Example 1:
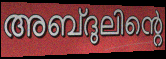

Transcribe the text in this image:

അബ്ദുലിന്റെ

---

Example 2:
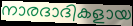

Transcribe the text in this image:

നാരദാദികളായ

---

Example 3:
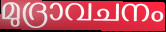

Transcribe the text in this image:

മുദ്രാവചനം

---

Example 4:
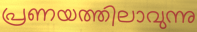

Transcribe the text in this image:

പ്രണയത്തിലാവുന്നു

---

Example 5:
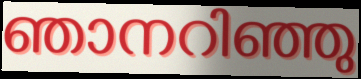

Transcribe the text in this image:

ഞാനറിഞ്ഞു